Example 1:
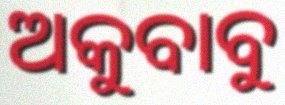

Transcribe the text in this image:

ଅକୁବାବୁ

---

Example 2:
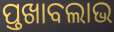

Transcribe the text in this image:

ପ୍ତଖାବଲାଭ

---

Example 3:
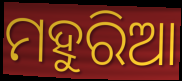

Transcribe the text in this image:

ମହୁରିଆ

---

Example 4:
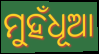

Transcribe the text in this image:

ମୁହଁଧୂଆ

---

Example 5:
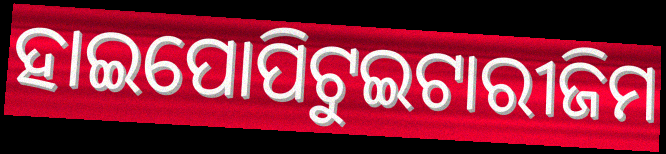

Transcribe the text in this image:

ହାଇପୋପିଟୁଇଟାରୀଜିମ